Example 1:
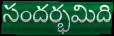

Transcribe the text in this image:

సందర్భమిది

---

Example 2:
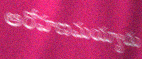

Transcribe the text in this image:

ఆరోహణమయ్యాడు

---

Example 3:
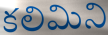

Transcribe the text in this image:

కలిమిని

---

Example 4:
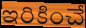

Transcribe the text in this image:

ఇరికించే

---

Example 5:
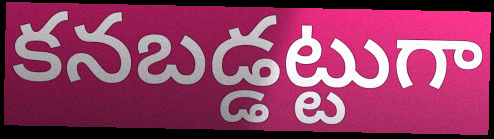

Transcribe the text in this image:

కనబడ్డట్టుగా